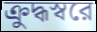
ক্রুদ্ধস্বরে